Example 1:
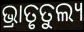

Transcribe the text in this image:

ଭ୍ରାତୃତୁଲ୍ୟ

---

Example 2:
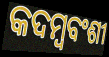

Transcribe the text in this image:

କଦମ୍ବବଂଶୀ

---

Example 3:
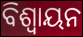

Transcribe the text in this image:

ବିଶ୍ୱାୟନ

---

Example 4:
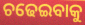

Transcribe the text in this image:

ଚଢେଇବାକୁ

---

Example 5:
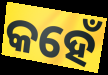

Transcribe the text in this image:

କହେଁ